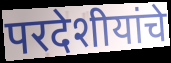
परदेशीयांचे